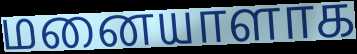
மனையாளாக